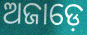
ଅଜାଡ଼େ